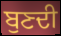
ਬੁਣਦੀ